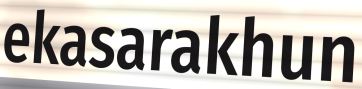
ekasarakhun